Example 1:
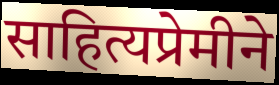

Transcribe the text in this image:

साहित्यप्रेमीने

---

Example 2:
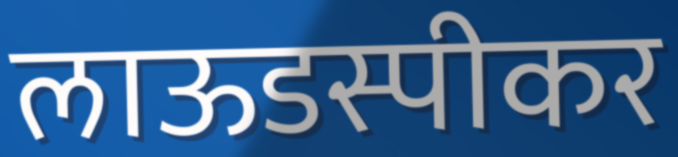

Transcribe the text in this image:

लाऊडस्पीकर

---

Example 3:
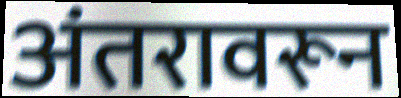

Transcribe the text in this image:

अंतरावरून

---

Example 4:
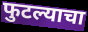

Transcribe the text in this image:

फुटल्याचा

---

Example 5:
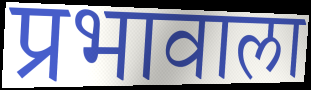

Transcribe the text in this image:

प्रभावाला